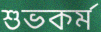
শুভকর্ম